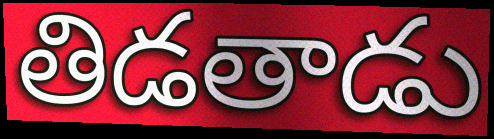
తిడతాడు